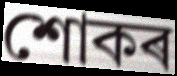
শোকৰ